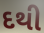
દથી